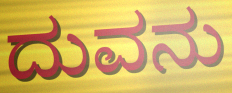
ದುವನು